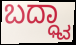
ಬದ್ಧ್ವಾ